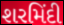
શરમિંદી